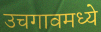
उचगावमध्ये